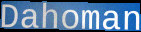
Dahoman